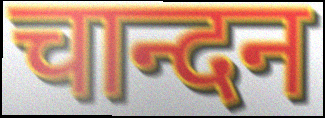
चान्दन